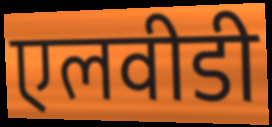
एलवीडी